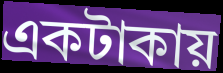
একটাকায়